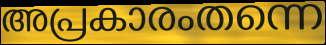
അപ്രകാരംതന്നെ